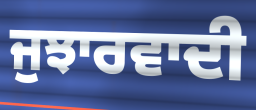
ਜੁਝਾਰਵਾਦੀ